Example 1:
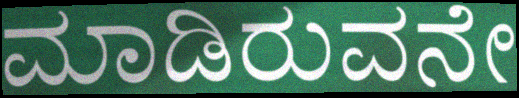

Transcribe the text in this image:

ಮಾಡಿರುವನೇ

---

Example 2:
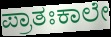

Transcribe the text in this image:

ಪ್ರಾತಃಕಾಲೇ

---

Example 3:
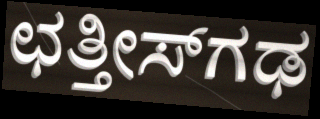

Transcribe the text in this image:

ಛತ್ತೀಸ್‌ಗಢ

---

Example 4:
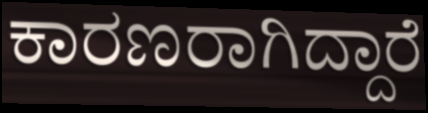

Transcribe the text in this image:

ಕಾರಣರಾಗಿದ್ದಾರೆ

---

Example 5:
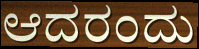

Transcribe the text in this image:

ಆದರಂದು